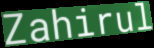
Zahirul